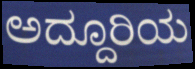
ಅದ್ದೂರಿಯ